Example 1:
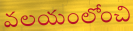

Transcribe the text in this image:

వలయంలోంచి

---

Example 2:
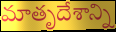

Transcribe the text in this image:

మాతృదేశాన్ని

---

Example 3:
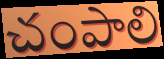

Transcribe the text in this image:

చంపాలి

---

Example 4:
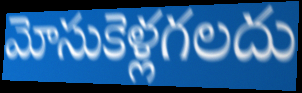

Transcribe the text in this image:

మోసుకెళ్లగలదు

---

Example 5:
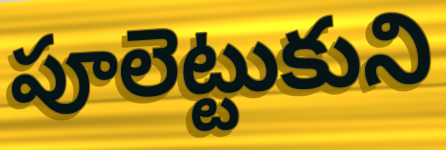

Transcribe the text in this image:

పూలెట్టుకుని